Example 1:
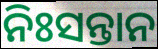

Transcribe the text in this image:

ନିଃସନ୍ତାନ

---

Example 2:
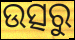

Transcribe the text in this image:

ଉତ୍ସରୁ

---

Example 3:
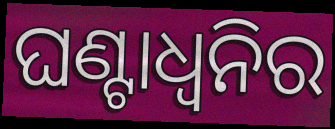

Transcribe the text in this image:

ଘଣ୍ଟାଧ୍ୱନିର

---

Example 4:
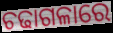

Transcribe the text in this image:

ଚଢାଗଳାରେ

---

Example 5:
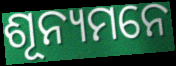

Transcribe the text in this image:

ଶୂନ୍ୟମନେ